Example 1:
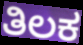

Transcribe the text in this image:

ತಿಲಕ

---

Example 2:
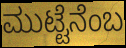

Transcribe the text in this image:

ಮುಟ್ಟೆನೆಂಬ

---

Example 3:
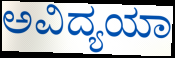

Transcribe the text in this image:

ಅವಿದ್ಯಯಾ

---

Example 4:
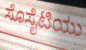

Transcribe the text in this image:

ಸೊಸೈಟಿಯು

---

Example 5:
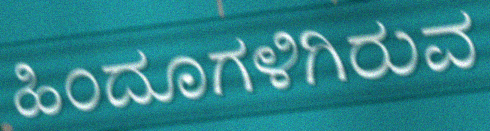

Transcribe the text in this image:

ಹಿಂದೂಗಳಿಗಿರುವ